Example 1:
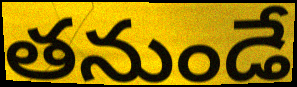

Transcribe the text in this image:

తనుండే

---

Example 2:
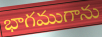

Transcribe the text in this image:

భాగముగాను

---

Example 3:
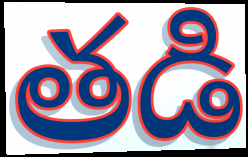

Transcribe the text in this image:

తడి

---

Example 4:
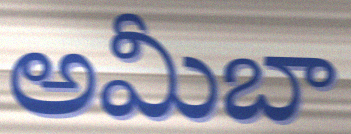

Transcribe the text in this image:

అమీబా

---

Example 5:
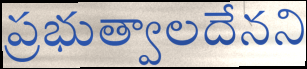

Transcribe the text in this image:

ప్రభుత్వాలదేనని